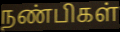
நண்பிகள்